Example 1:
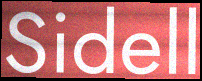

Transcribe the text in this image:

Sidell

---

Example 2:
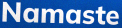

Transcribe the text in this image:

Namaste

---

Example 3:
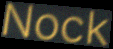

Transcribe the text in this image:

Nock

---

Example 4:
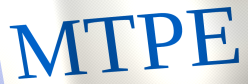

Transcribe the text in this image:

MTPE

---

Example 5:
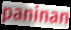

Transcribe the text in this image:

paninan